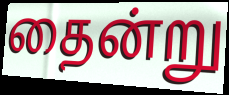
தைன்று